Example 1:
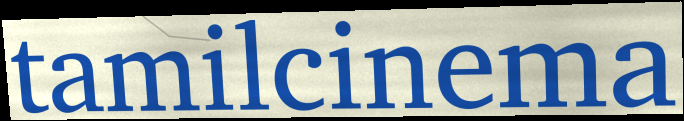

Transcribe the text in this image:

tamilcinema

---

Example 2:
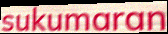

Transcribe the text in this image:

sukumaran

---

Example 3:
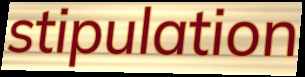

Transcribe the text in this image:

stipulation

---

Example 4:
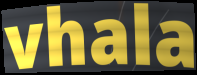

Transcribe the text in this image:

vhala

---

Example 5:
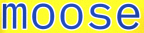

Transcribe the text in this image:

moose